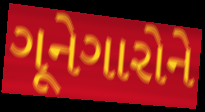
ગૂનેગારોને